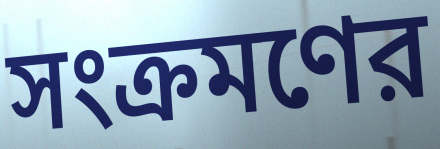
সংক্রমণের